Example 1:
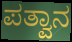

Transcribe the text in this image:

ಪತ್ವಾನ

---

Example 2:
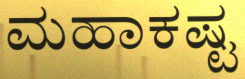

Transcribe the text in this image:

ಮಹಾಕಷ್ಟ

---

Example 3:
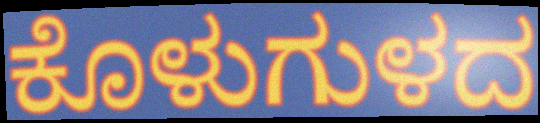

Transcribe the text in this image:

ಕೊಳುಗುಳದ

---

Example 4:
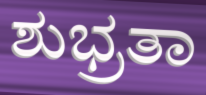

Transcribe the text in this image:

ಶುಭ್ರತಾ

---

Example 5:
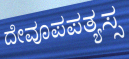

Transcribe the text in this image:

ದೇವೂಪಪತ್ಯಸ್ಸ